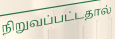
நிறுவப்பட்டதால்